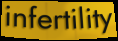
infertility